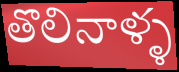
తొలినాళ్ళ